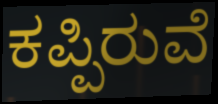
ಕಪ್ಪಿರುವೆ